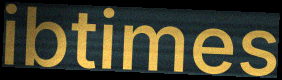
ibtimes